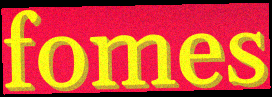
fomes